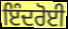
ਇੰਦਰੋਈ